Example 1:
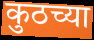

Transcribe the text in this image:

कुठच्या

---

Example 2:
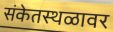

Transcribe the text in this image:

संकेतस्थळावर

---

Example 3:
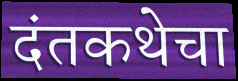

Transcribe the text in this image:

दंतकथेचा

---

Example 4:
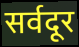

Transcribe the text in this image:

सर्वदूर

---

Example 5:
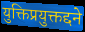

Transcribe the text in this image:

युक्तिप्रयुक्तद्दने